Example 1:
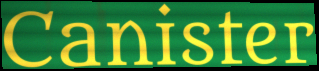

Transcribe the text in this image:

Canister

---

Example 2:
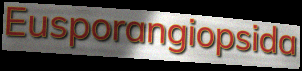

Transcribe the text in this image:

Eusporangiopsida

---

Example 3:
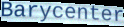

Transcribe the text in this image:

Barycenter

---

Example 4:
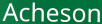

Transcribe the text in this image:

Acheson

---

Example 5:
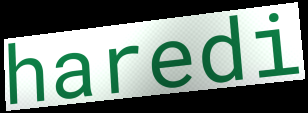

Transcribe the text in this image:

haredi